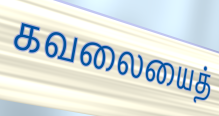
கவலையைத்